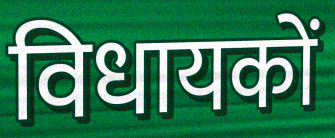
विधायकों